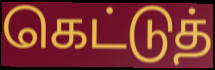
கெட்டுத்